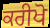
ਕਰੀਖੋ